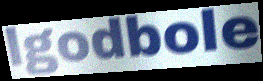
lgodbole